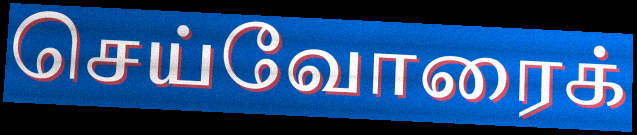
செய்வோரைக்